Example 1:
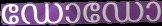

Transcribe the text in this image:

ഡോഡോ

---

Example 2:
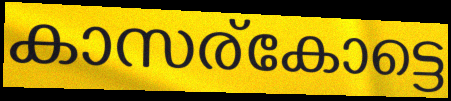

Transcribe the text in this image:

കാസര്കോട്ടെ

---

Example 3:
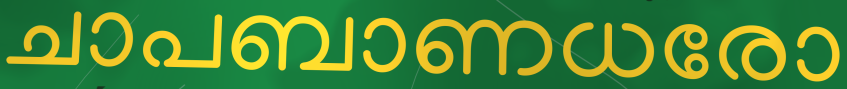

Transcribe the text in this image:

ചാപബാണധരോ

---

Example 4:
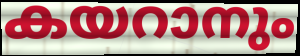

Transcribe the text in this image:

കയറാനും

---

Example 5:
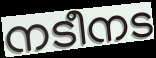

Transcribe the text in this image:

നടീനട